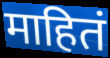
माहितं